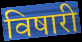
विषारी